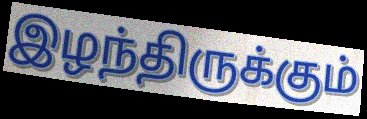
இழந்திருக்கும்